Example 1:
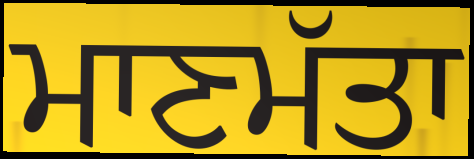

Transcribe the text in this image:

ਮਾਣਮੱਤਾ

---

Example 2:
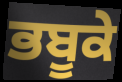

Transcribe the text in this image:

ਭਬੂਕੇ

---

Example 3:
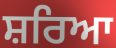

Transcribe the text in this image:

ਸ਼ਰਿਆ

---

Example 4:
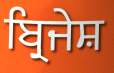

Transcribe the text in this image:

ਬ੍ਰਿਜੇਸ਼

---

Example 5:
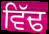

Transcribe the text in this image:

ਵਿੱਢ